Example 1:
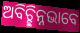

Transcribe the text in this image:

ଅବିଚ୍ଛିନ୍ନଭାବେ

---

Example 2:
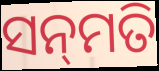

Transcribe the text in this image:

ସନ୍‌ମତି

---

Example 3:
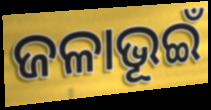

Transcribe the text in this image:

ଜଳାଭୂଇଁ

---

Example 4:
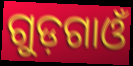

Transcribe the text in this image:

ଗୁଡ଼ଗାଓଁ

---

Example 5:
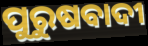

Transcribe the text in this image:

ପୁରୁଷବାଦୀ